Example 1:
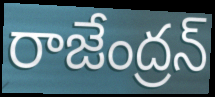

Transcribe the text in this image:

రాజేంద్రన్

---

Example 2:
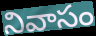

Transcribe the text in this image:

నివాసం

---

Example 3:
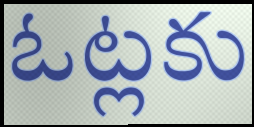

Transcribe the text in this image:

ఓట్లకు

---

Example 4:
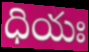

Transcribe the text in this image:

ధియః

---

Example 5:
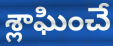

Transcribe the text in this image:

శ్లాఘించే